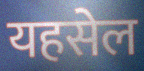
यहसेल